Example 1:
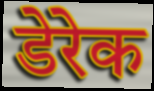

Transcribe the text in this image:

डेरेक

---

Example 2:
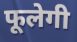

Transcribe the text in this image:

फूलेगी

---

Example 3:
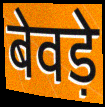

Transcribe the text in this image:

बेवड़े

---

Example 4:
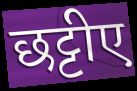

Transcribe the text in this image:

छट्टीए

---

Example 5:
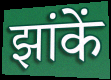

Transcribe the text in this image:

झांकें